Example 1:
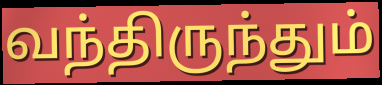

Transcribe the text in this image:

வந்திருந்தும்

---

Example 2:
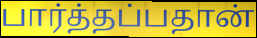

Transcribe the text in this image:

பார்த்தப்பதான்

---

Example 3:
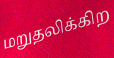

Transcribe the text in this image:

மறுதலிக்கிற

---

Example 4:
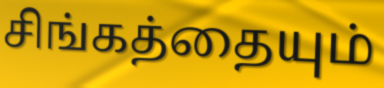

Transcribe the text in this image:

சிங்கத்தையும்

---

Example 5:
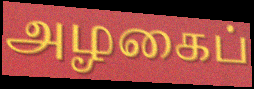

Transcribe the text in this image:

அழகைப்